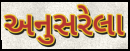
અનુસરેલા